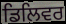
ਡਿਲਿਵਰ